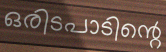
ഒരിടപാടിന്റെ